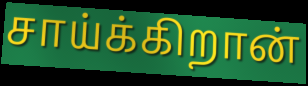
சாய்க்கிறான்